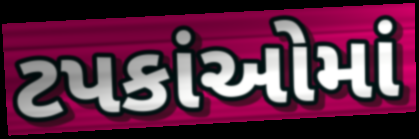
ટપકાંઓમાં